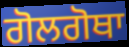
ਗੋਲਗੋਥਾ